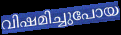
വിഷമിച്ചുപോയ